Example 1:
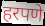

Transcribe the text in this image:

हरपणे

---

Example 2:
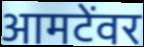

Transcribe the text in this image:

आमटेंवर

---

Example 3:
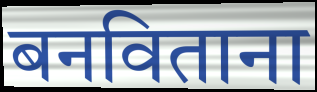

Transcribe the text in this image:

बनविताना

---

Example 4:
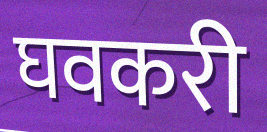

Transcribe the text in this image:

घवकरी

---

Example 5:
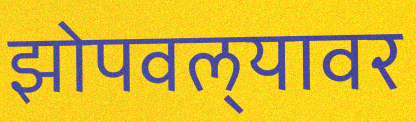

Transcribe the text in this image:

झोपवल्यावर